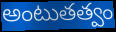
అంటుతత్వం